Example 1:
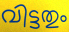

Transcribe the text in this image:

വിട്ടതും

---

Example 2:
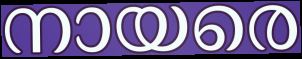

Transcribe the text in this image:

നായരെ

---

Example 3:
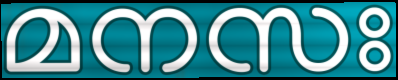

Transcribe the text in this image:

മനസഃ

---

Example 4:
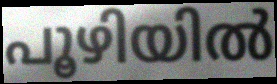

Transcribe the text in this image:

പൂഴിയിൽ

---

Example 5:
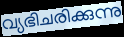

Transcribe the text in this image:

വ്യഭിചരിക്കുന്നു